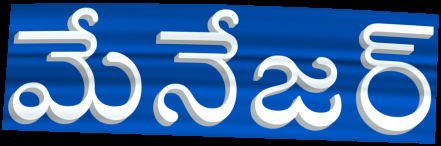
మేనేజర్